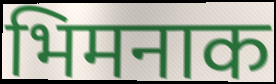
भिमनाक